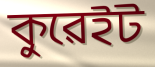
কুৱেইট